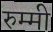
रुम्मी